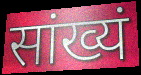
सांख्यं